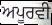
ਅਪੂਰਵੀ